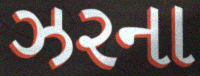
ઝરના